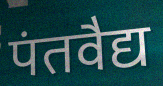
पंतवैद्य